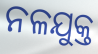
ନଳଯୁକ୍ତ